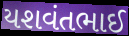
યશવંતભાઈ